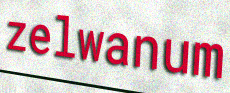
zelwanum